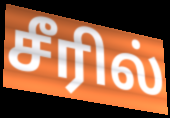
சீரில்